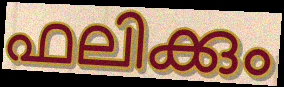
ഫലിക്കും